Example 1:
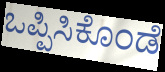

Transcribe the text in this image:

ಒಪ್ಪಿಸಿಕೊಂಡೆ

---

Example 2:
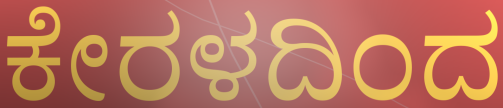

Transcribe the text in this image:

ಕೇರಳದಿಂದ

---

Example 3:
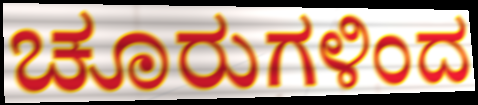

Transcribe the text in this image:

ಚೂರುಗಳಿಂದ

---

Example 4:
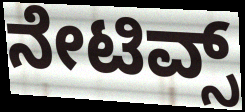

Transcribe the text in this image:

ನೇಟಿವ್ಸ್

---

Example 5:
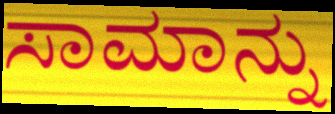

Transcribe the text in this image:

ಸಾಮಾನ್ನು